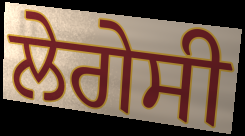
ਲੇਗੇਸੀ